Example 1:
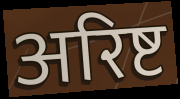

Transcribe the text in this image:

अरिष्ट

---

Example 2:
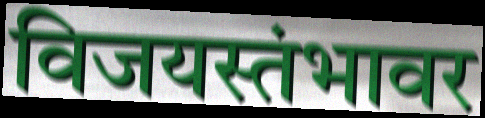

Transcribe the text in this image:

विजयस्तंभावर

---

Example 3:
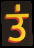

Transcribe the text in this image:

उ॑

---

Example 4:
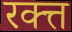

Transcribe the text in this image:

रक्त्त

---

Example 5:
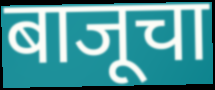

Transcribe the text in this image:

बाजूचा